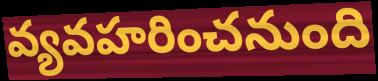
వ్యవహరించనుంది